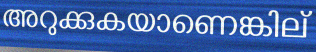
അറുക്കുകയാണെങ്കില്